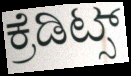
ಕ್ರೆಡಿಟ್ಸ್